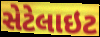
સેટેલાઇટ